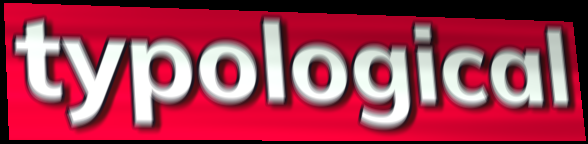
typological